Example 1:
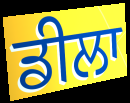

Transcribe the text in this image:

ਡੀਲਾ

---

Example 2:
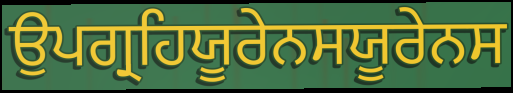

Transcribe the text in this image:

ਉਪਗ੍ਰਹਿਯੂਰੇਨਸਯੂਰੇਨਸ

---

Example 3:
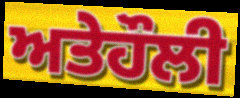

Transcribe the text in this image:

ਅਤੇਹੌਲੀ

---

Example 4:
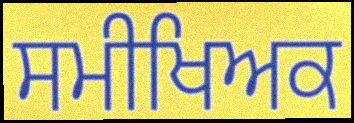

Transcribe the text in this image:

ਸਮੀਖਿਅਕ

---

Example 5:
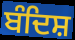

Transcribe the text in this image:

ਬੰਦਿਸ਼